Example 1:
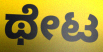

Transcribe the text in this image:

ಥೇಟ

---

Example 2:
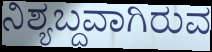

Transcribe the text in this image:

ನಿಶ್ಯಬ್ದವಾಗಿರುವ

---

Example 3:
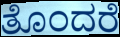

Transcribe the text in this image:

ತೊಂದರೆ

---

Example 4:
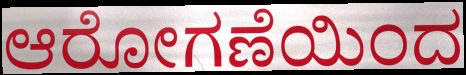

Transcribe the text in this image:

ಆರೋಗಣೆಯಿಂದ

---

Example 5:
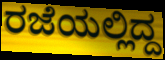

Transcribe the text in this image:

ರಜೆಯಲ್ಲಿದ್ದ